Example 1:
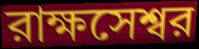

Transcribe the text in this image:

রাক্ষসেশ্বর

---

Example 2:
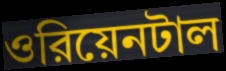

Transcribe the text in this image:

ওরিয়েনটাল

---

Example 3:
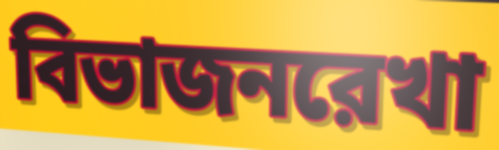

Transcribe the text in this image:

বিভাজনরেখা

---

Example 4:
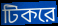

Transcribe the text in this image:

টিকরে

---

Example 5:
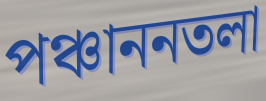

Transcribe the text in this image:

পঞ্চাননতলা